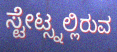
ಸ್ಟೇಟ್ಸ್ನಲ್ಲಿರುವ